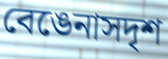
বেঙেনাসদৃশ